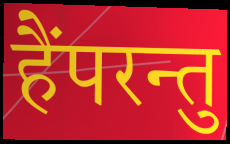
हैंपरन्तु